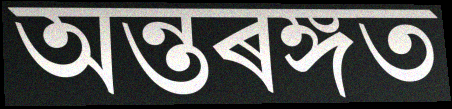
অন্তৰঙ্গত